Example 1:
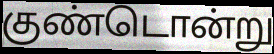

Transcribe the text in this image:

குண்டொன்று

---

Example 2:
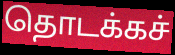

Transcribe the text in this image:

தொடக்கச்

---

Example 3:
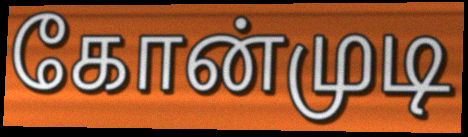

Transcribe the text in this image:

கோன்முடி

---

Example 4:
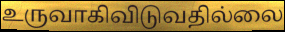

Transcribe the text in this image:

உருவாகிவிடுவதில்லை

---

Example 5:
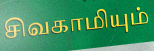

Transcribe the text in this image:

சிவகாமியும்